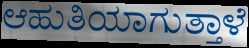
ಆಹುತಿಯಾಗುತ್ತಾಳೆ